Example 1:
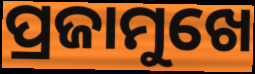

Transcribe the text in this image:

ପ୍ରଜାମୁଖେ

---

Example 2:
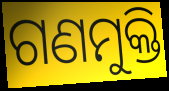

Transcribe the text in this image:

ଗଣମୁକ୍ତି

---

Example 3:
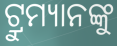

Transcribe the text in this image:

ଟ୍ରୁମ୍ୟାନଙ୍କୁ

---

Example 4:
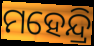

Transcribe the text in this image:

ମହେନ୍ଦ୍ରି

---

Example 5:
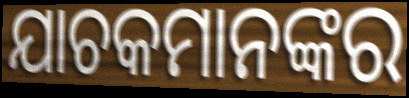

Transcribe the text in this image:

ଯାଚକମାନଙ୍କର